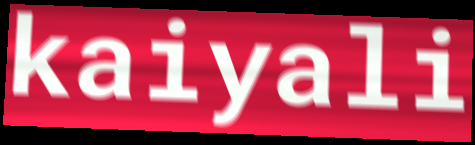
kaiyali